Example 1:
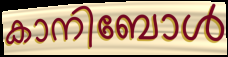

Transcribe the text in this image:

കാനിബോൾ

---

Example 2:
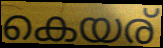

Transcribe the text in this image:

കെയര്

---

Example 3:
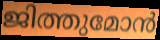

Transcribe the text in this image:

ജിത്തുമോൻ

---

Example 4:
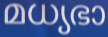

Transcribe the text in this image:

മധ്യഭാ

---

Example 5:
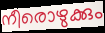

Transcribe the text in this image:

നീരൊഴുക്കും